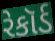
રેકૉર્ડ